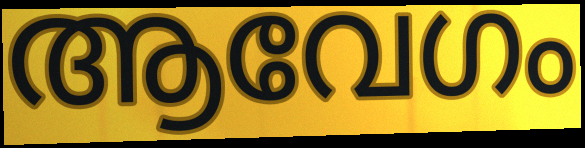
ആവേഗം